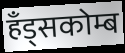
हँड्सकोम्ब